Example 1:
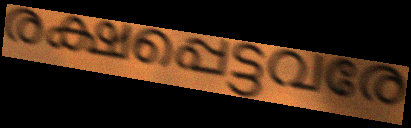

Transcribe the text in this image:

രക്ഷപ്പെട്ടവരേ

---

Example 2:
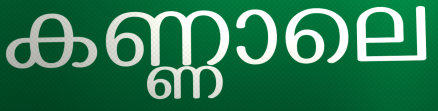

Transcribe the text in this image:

കണ്ണാലെ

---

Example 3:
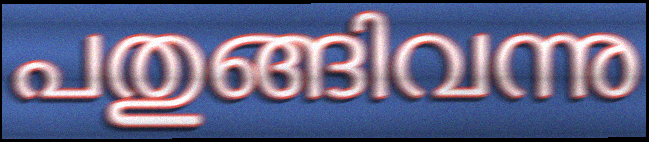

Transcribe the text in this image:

പതുങ്ങിവന്നു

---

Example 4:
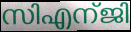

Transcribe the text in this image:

സിഎന്ജി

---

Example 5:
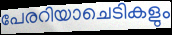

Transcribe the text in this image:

പേരറിയാചെടികളും